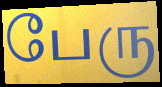
பேரு